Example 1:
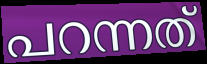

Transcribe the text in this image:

പറന്നത്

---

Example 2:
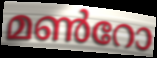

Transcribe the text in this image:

മൺറോ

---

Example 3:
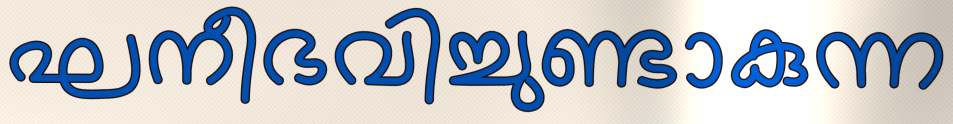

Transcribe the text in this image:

ഘനീഭവിച്ചുണ്ടാകുന്ന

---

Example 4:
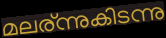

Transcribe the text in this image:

മലര്ന്നുകിടന്നു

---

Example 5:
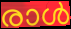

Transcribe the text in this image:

രാൾ